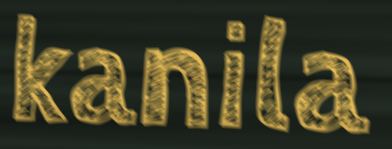
kanila